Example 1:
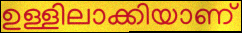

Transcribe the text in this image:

ഉള്ളിലാക്കിയാണ്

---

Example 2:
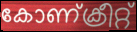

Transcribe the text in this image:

കോണ്ക്രീറ്റ്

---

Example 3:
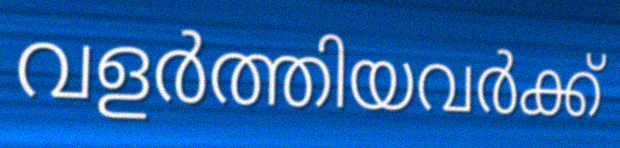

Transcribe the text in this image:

വളർത്തിയവർക്ക്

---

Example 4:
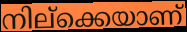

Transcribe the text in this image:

നില്ക്കെയാണ്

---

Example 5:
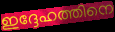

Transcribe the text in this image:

ഇദ്ദേഹത്തിനെ